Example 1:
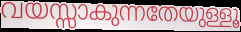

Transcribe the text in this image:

വയസ്സാകുന്നതേയുള്ളൂ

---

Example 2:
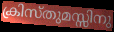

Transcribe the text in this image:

ക്രിസ്തുമസ്സിനു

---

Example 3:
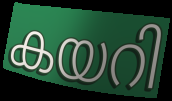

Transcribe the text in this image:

കയറി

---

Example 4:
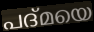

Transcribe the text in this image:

പദ്മയെ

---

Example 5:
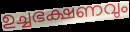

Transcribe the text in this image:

ഉച്ചഭക്ഷണവും